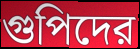
গুপিদের